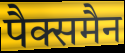
पैक्समैन